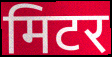
मिटर